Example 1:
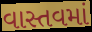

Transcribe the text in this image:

વાસ્તવમાં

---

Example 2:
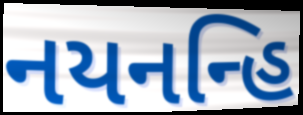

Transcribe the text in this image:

નયનન્હિ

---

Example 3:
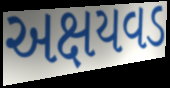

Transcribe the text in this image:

અક્ષયવડ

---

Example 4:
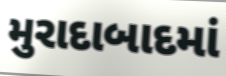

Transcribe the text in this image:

મુરાદાબાદમાં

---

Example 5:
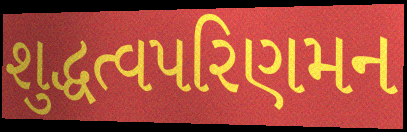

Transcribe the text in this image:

શુદ્ધત્વપરિણમન